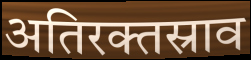
अतिरक्तस्राव